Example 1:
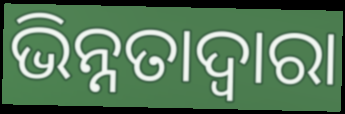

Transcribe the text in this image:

ଭିନ୍ନତାଦ୍ୱାରା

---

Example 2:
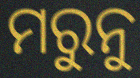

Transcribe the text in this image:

ମରୁନୁ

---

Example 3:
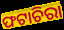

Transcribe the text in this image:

ଫଟାଚିରା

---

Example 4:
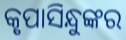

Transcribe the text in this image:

କୃପାସିନ୍ଧୁଙ୍କର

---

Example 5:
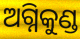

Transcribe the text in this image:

ଅଗ୍ନିକୁଣ୍ଡ